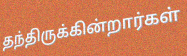
தந்திருக்கின்றார்கள்